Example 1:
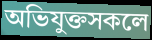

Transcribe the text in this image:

অভিযুক্তসকলে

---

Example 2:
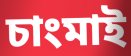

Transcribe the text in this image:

চাংমাই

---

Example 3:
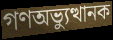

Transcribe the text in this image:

গণঅভ্যুত্থানক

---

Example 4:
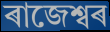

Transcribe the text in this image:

ৰাজেশ্বৰ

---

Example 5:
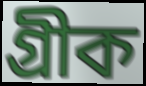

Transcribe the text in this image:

গ্ৰীক